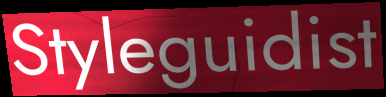
Styleguidist